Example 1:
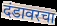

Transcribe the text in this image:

दंडावरचा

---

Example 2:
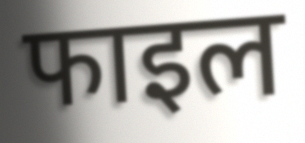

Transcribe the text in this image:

फाइल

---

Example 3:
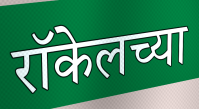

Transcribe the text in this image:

रॉकेलच्या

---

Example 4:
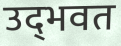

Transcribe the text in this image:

उद्‌भवत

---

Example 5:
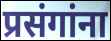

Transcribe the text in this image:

प्रसंगांना